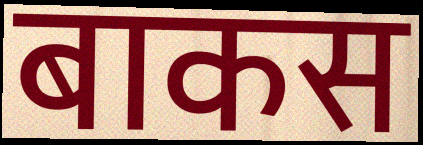
बाकस